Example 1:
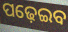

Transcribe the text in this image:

ପଢ଼େଇବ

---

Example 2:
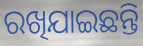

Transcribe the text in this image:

ରଖିଯାଇଛନ୍ତି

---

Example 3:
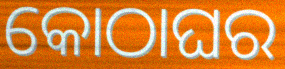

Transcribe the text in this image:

କୋଠାଘର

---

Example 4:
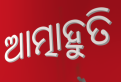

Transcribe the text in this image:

ଆତ୍ମାହୁତି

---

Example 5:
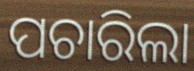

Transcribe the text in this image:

ପଚାରିଲା